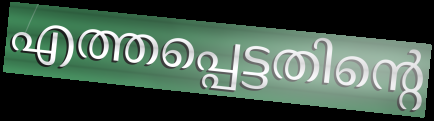
എത്തപ്പെട്ടതിന്റെ